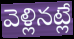
వెళ్లినట్లే